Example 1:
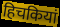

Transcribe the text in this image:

हिचकियां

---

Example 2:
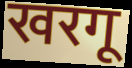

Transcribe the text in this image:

खरगू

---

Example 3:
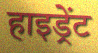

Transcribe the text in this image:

हाइड्रेंट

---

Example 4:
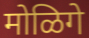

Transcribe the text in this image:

मोळिगे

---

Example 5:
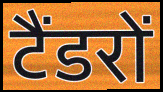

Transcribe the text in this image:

टैंडरों